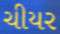
ચીયર